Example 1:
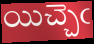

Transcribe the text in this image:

యిచ్చెఁ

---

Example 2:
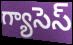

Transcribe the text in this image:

గ్యాసెస్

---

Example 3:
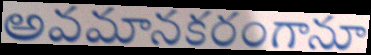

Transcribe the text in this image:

అవమానకరంగానూ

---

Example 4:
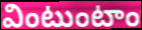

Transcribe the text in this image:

వింటుంటాం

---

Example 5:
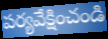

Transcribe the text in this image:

పర్యవేక్షించండి